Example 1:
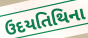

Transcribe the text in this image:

ઉદયતિથિના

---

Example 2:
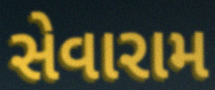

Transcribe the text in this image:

સેવારામ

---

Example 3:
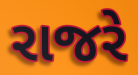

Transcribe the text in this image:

રાજરે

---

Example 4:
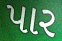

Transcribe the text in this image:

પાર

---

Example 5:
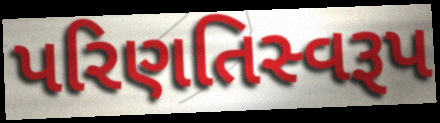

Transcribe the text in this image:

પરિણતિસ્વરૂપ